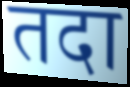
तदा